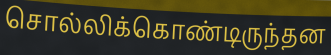
சொல்லிக்கொண்டிருந்தன